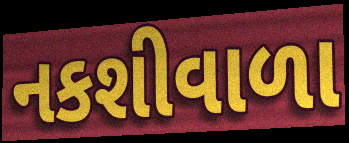
નકશીવાળા